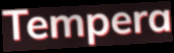
Tempera